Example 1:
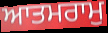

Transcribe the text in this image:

ਆਤਮਰਾਮੁ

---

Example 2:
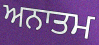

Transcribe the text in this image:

ਅਨਾਤਮ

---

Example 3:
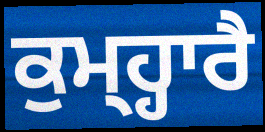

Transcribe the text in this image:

ਕੁਮ੍ਹ੍ਹਾਰੈ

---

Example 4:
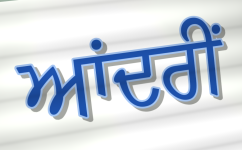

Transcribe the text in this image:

ਆਂਦਰੀਂ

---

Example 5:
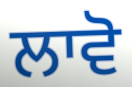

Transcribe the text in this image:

ਲਾਵੋ